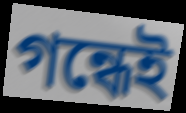
গন্ধেই